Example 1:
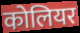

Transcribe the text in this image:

कोलियर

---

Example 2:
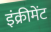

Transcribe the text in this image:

इंक्रीमेंट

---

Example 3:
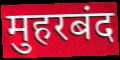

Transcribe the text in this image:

मुहरबंद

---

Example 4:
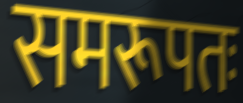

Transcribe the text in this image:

समरूपतः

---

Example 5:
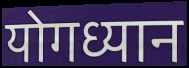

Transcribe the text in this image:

योगध्यान